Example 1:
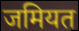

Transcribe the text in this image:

जमियत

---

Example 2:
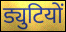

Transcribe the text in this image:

ड्युटियों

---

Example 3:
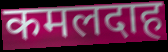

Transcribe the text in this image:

कमलदाह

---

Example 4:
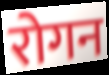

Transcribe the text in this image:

रोगन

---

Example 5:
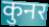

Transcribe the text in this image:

कुनर